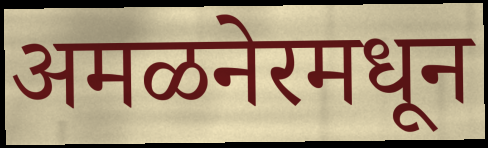
अमळनेरमधून